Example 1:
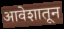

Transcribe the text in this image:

आवेशातून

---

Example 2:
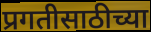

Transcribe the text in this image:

प्रगतीसाठीच्या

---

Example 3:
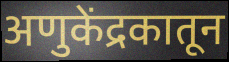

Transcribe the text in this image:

अणुकेंद्रकातून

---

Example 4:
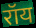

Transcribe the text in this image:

रॉय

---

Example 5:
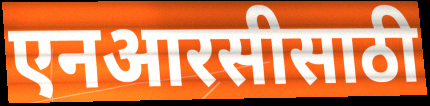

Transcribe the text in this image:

एनआरसीसाठी